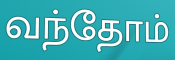
வந்தோம்